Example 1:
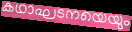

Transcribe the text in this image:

കഥാഘടനയെയും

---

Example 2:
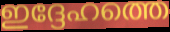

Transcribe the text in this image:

ഇദ്ദേഹത്തെ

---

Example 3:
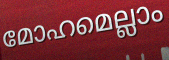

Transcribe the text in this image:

മോഹമെല്ലാം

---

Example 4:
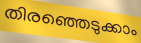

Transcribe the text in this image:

തിരഞ്ഞെടുക്കാം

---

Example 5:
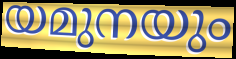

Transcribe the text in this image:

യമുനയും